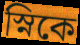
স্নিকে